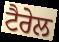
ਟੈਰੇਲ